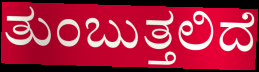
ತುಂಬುತ್ತಲಿದೆ